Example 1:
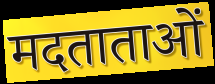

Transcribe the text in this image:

मदताताओं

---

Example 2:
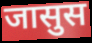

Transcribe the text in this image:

जासुस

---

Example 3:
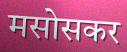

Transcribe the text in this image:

मसोसकर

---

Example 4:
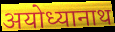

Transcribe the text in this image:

अयोध्यानाथ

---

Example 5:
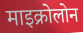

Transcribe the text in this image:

माइक्रोलोन